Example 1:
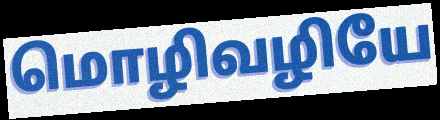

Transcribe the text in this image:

மொழிவழியே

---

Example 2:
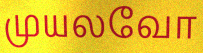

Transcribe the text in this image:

முயலவோ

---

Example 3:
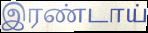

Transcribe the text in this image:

இரண்டாய்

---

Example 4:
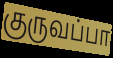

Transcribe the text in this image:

குருவப்பா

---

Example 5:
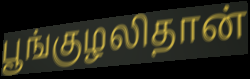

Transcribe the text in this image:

பூங்குழலிதான்